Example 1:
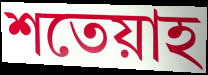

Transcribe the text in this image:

শতেয়াহ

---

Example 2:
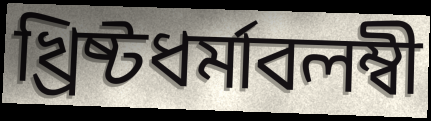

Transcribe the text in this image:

খ্রিষ্টধর্মাবলম্বী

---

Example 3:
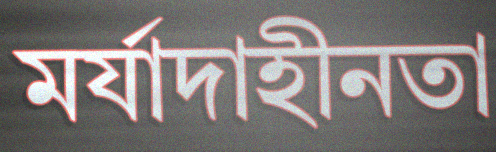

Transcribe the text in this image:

মর্যাদাহীনতা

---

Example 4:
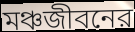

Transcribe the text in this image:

মঞ্চজীবনের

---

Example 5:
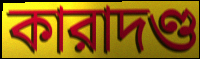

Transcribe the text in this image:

কারাদণ্ড